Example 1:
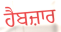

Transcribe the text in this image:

ਹੈਬਜ਼ਾਰ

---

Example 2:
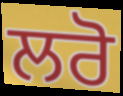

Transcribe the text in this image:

ਲਰੋ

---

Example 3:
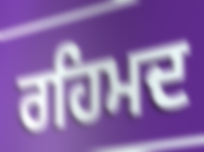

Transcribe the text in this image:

ਰਹਿਮਦ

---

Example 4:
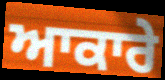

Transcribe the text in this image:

ਆਕਾਰੇ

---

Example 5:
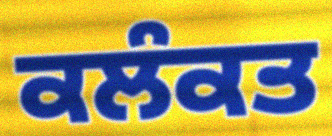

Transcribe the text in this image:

ਕਲੰਕਤ